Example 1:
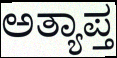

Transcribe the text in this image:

ಅತ್ಯಾಪ್ತ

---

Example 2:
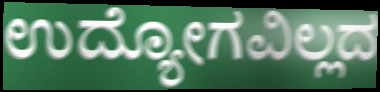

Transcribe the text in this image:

ಉದ್ಯೋಗವಿಲ್ಲದ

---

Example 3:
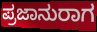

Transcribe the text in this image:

ಪ್ರಜಾನುರಾಗ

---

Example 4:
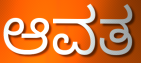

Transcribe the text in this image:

ಆವತ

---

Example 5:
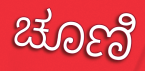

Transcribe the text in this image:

ಚೂಣಿ